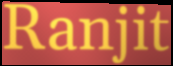
Ranjit